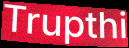
Trupthi